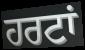
ਹਰਟਾਂ